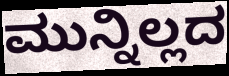
ಮುನ್ನಿಲ್ಲದ